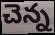
చెన్న